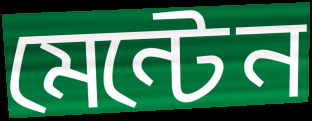
মেন্টেন